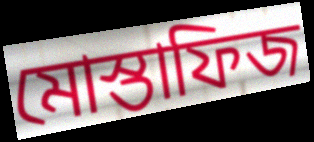
মোস্তাফিজ